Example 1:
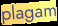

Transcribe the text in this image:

plagam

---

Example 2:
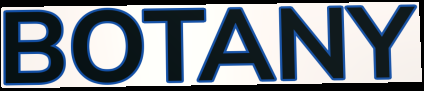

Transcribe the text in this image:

BOTANY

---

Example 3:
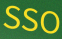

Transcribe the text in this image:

SSO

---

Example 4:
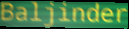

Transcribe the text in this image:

Baljinder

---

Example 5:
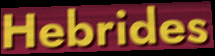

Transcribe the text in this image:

Hebrides